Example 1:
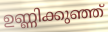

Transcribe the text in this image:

ഉണ്ണിക്കുഞ്ഞ്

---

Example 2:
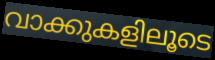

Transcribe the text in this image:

വാക്കുകളിലൂടെ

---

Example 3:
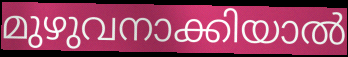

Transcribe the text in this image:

മുഴുവനാക്കിയാൽ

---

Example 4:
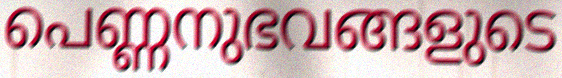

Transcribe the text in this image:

പെണ്ണനുഭവങ്ങളുടെ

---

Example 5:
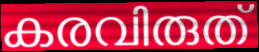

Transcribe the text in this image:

കരവിരുത്